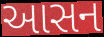
આસન